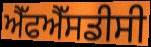
ਐੱਫਐੱਸਡੀਸੀ